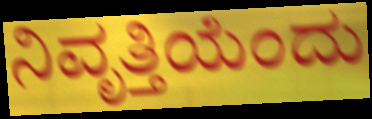
ನಿವೃತ್ತಿಯೆಂದು